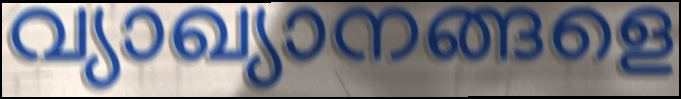
വ്യാഖ്യാനങ്ങളെ